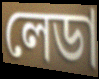
লেডা